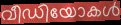
വീഡിയോകൾ